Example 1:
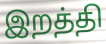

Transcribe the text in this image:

இறத்தி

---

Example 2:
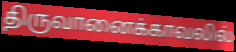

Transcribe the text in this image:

திருவானைக்காவலில்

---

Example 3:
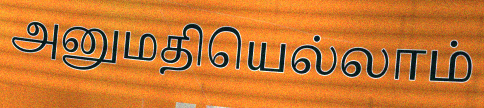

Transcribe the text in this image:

அனுமதியெல்லாம்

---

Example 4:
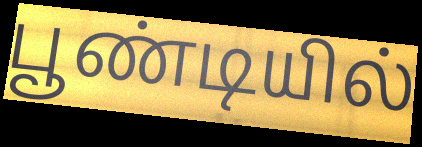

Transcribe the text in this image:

பூண்டியில்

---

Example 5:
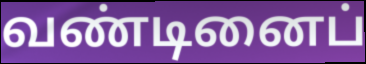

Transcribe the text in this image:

வண்டினைப்